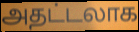
அதட்டலாக